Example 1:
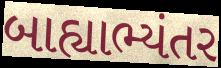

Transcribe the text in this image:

બાહ્યાભ્યંતર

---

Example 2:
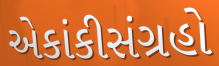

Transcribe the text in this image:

એકાંકીસંગ્રહો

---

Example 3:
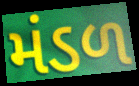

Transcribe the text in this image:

મંડળ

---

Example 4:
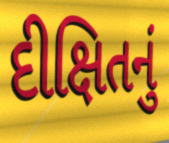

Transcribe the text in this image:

દીક્ષિતનું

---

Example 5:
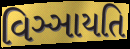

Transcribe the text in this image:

વિઞ્ઞાયતિ